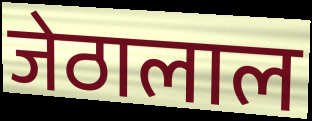
जेठालाल